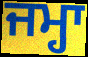
ਜਮ੍ਹਾ